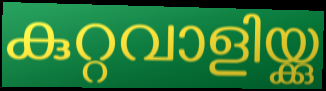
കുറ്റവാളിയ്ക്കു